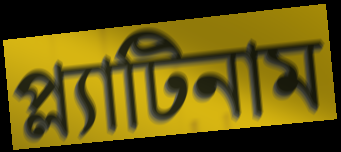
প্ল্যাটিনাম